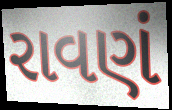
રાવણં